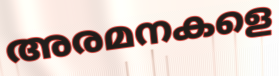
അരമനകളെ